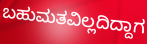
ಬಹುಮತವಿಲ್ಲದಿದ್ದಾಗ